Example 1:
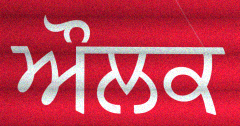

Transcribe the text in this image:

ਔਲਕ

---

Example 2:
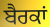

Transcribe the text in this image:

ਬੈਰਕਾਂ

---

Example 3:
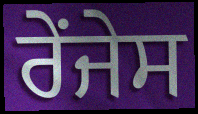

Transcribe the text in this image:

ਰੇਂਜੇਸ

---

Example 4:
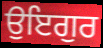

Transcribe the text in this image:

ਉਇਗੁਰ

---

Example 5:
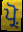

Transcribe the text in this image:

ਪ੍ਰ਼ੋ